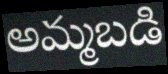
అమ్మబడి